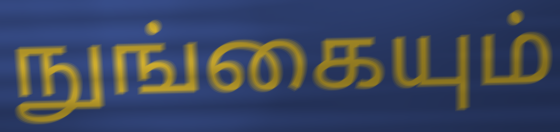
நுங்கையும்